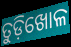
ତୁଡ଼ିଖୋଳ